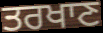
ਤਰਖਾਣ